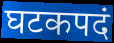
घटकपदं